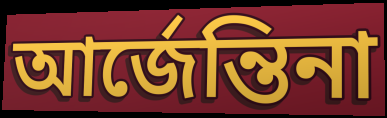
আর্জেন্তিনা